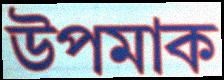
উপমাক